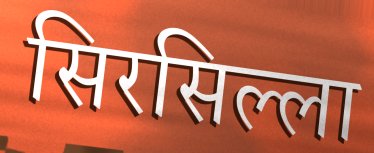
सिरसिल्ला